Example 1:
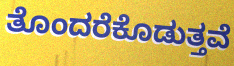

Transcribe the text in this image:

ತೊಂದರೆಕೊಡುತ್ತವೆ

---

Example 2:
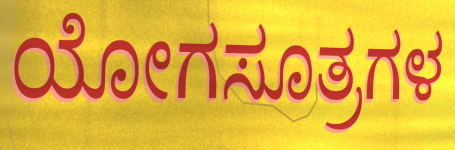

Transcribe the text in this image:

ಯೋಗಸೂತ್ರಗಳ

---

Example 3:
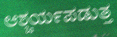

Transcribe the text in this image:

ಆಶ್ಚರ್ಯಪಡುತ್ತ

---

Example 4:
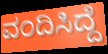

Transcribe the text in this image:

ವಂದಿಸಿದ್ದೆ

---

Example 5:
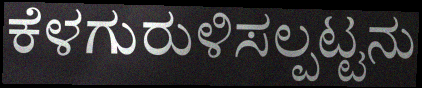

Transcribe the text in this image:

ಕೆಳಗುರುಳಿಸಲ್ಪಟ್ಟನು